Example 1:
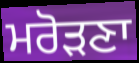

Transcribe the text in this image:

ਮਰੋੜਣਾ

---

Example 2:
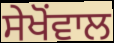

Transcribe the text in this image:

ਸੇਖੋਂਵਾਲ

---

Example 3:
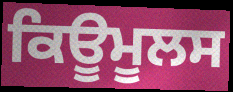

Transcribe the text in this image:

ਕਿਊਮੂਲਸ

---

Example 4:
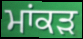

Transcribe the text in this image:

ਮਾਂਕੜ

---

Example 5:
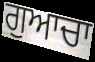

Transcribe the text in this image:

ਗੁਆਚਾ